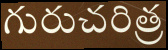
గురుచరిత్ర